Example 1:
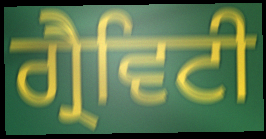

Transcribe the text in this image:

ਗ੍ਰੈਵਿਟੀ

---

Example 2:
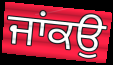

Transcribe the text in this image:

ਜਾਂਕਉ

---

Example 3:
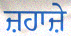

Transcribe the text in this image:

ਜ਼ਹਾਜ਼ੇ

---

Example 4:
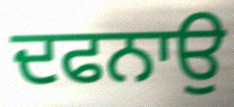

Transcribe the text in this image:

ਦਫਨਾਉ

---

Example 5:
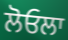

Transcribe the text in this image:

ਲੋਓਲਾ